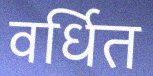
वर्धित